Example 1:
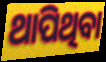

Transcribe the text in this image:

ଥାପିଥିବା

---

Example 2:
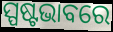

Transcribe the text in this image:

ସ୍ପଷ୍ଟଭାବରେ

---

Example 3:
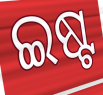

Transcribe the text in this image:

ଇଷ୍ଟ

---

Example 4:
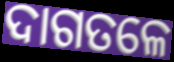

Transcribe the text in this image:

ଦାଗତଳେ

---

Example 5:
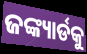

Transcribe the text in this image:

ଜଙ୍କ୍ୟାର୍ଡକୁ